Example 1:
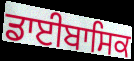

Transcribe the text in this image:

ਡਾਈਬਾਸਿਕ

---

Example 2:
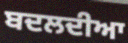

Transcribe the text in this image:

ਬਦਲਦੀਆ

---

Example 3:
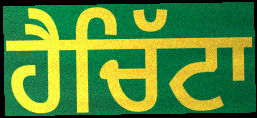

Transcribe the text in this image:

ਹੈਚਿੱਟਾ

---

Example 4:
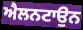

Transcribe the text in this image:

ਐਲਨਟਾਉਨ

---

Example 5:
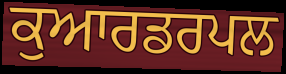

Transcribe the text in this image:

ਕੁਆਰਡਰਪਲ